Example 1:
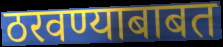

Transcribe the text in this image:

ठरवण्याबाबत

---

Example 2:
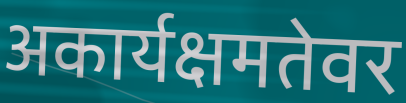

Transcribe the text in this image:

अकार्यक्षमतेवर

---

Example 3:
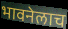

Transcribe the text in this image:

भावनेलाच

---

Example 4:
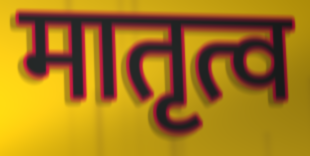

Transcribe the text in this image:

मातृत्व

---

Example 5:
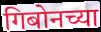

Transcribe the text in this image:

गिबोनच्या